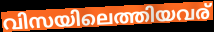
വിസയിലെത്തിയവര്